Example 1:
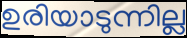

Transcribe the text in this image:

ഉരിയാടുന്നില്ല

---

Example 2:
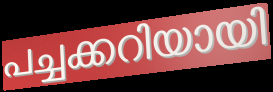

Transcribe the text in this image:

പച്ചക്കറിയായി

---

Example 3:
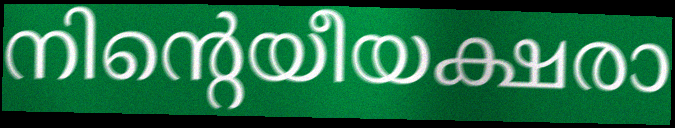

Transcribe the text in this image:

നിന്റെയീയക്ഷരാ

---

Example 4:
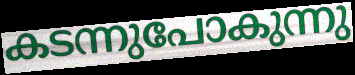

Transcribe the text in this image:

കടന്നുപോകുന്നു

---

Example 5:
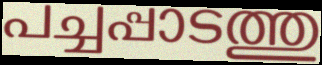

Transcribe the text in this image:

പച്ചപ്പാടത്തു